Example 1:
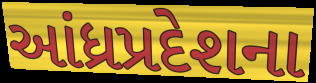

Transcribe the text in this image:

આંધ્રપ્રદેશના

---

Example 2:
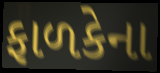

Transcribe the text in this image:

ફાળકેના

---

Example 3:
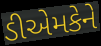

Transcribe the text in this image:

ડીએમકેને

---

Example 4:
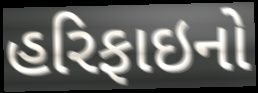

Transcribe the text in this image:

હરિફાઇનો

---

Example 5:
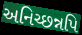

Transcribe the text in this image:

અનિચ્છન્નપિ